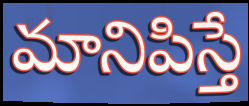
మానిపిస్తే